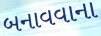
બનાવવાના